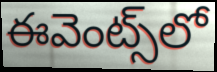
ఈవెంట్స్‌లో